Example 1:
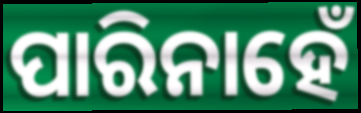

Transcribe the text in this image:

ପାରିନାହେଁ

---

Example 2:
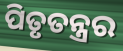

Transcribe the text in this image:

ପିତୃତନ୍ତ୍ରର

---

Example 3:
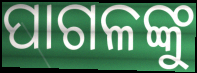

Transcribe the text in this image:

ପାଗଳଙ୍କୁ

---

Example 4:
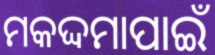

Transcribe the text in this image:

ମକଦ୍ଦମାପାଇଁ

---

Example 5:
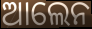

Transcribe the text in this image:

ଆଲେନ